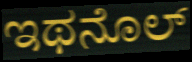
ಇಥನೊಲ್